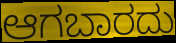
ಆಗಬಾರದು